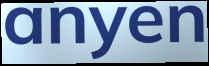
anyen